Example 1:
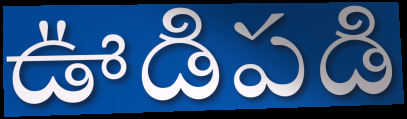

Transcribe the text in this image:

ఊడిపడి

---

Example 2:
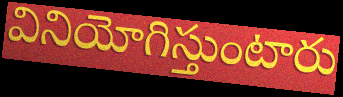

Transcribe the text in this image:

వినియోగిస్తుంటారు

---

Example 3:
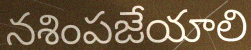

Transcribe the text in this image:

నశింపజేయాలి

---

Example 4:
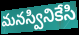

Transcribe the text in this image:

మనస్వినికేసి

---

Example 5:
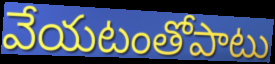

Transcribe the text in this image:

వేయటంతోపాటు